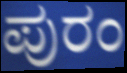
ಪುರಂ